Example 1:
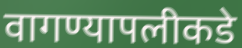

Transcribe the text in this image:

वागण्यापलीकडे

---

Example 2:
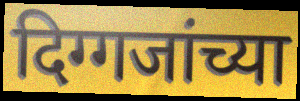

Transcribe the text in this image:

दिग्गजांच्या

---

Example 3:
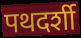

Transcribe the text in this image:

पथदर्शी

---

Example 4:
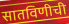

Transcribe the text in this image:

सातविणीची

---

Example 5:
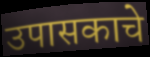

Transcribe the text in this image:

उपासकाचे